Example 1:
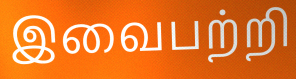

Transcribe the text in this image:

இவைபற்றி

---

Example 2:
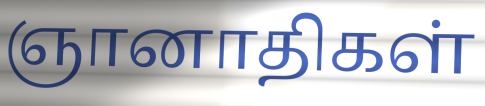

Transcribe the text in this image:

ஞானாதிகள்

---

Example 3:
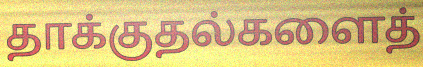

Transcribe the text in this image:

தாக்குதல்களைத்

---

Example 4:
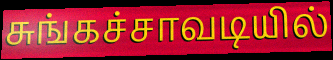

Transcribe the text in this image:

சுங்கச்சாவடியில்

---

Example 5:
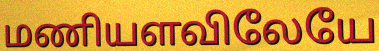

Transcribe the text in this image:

மணியளவிலேயே